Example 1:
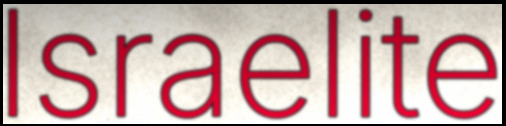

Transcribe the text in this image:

Israelite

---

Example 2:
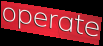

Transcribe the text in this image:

operate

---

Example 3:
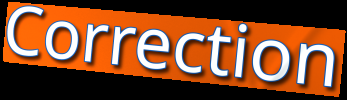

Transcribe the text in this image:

Correction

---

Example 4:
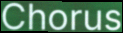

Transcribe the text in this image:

Chorus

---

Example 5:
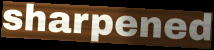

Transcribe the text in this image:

sharpened